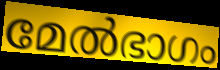
മേൽഭാഗം